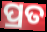
ପ୍ରତ